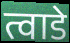
त्वाडे